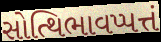
સોત્થિભાવપ્પત્તં